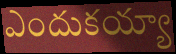
ఎందుకయ్యా